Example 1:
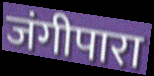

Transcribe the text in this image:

जंगीपारा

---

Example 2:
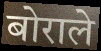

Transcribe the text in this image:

बोराले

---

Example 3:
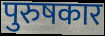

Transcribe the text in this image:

पुरुषकार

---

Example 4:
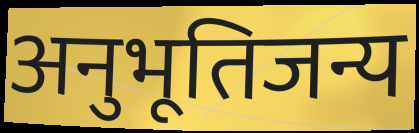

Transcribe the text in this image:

अनुभूतिजन्य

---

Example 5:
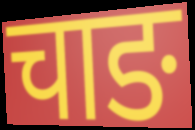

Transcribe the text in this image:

चाङ